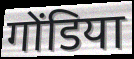
गोंडिया